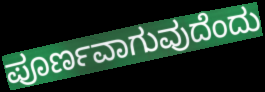
ಪೂರ್ಣವಾಗುವುದೆಂದು